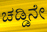
ಚಡ್ಡಿನೇ